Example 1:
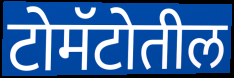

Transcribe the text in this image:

टोमॅटोतील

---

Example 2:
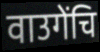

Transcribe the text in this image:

वाउगेंचि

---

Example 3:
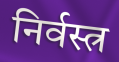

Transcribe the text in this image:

निर्वस्त्र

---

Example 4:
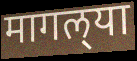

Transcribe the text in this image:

मागल्या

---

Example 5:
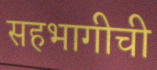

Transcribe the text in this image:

सहभागीची